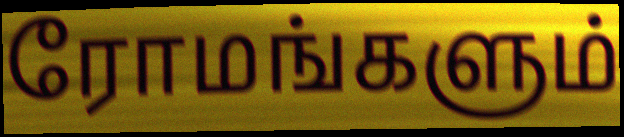
ரோமங்களும்